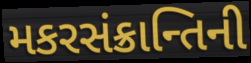
મકરસંક્રાન્તિની